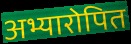
अभ्यारोपित